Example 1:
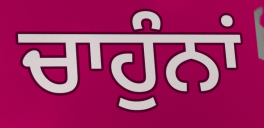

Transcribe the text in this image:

ਚਾਹੁੰਨਾਂ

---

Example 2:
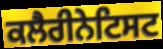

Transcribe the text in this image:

ਕਲੈਰੀਨੇਟਿਸਟ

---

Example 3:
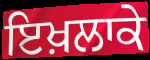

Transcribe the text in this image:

ਇਖ਼ਲਾਕੇ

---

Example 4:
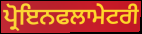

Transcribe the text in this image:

ਪ੍ਰੋਇਨਫਲਾਮੇਟਰੀ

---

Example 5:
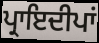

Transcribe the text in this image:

ਪ੍ਰਾਇਦੀਪਾਂ